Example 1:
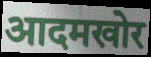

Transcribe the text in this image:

आदमखोर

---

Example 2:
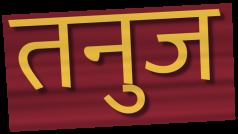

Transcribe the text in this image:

तनुज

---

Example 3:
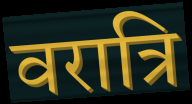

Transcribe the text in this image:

वरात्रि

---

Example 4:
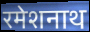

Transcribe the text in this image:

रमेशनाथ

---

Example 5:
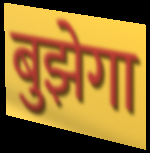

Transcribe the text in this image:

बुझेगा